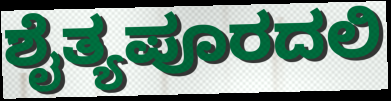
ಶೈತ್ಯಪೂರದಲಿ